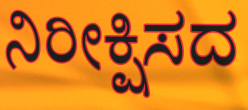
ನಿರೀಕ್ಷಿಸದ